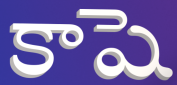
కాషె